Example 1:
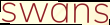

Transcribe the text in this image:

swans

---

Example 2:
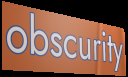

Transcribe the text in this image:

obscurity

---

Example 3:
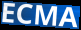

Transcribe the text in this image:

ECMA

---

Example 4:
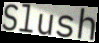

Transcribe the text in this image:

Slush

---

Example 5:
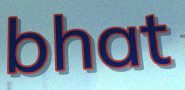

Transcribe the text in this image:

bhat